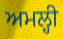
ਅਮਲ੍ਹੀ